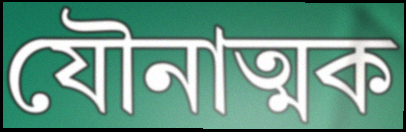
যৌনাত্মক